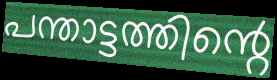
പന്താട്ടത്തിന്റെ